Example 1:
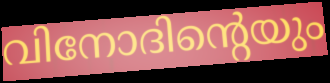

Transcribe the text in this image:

വിനോദിന്റെയും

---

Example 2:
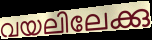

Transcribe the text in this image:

വയലിലേക്കു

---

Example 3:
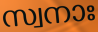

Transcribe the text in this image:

സ്വനാഃ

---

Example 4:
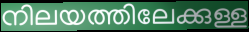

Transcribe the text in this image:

നിലയത്തിലേക്കുള്ള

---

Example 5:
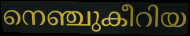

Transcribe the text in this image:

നെഞ്ചുകീറിയ